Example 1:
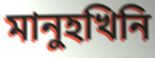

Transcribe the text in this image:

মানুহখিনি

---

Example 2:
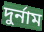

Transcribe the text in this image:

দুৰ্নাম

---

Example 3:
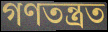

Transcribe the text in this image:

গণতন্ত্ৰত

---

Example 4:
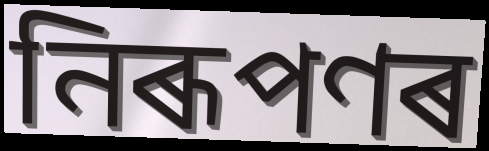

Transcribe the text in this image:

নিৰূপণৰ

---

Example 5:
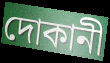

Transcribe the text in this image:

দোকানী